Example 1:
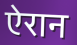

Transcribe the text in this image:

ऐरान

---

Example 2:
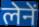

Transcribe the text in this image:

लेनें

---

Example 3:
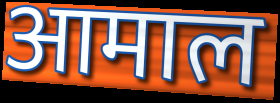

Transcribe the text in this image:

आमाल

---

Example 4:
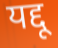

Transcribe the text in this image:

यद्दू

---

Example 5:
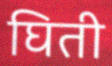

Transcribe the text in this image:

घिती